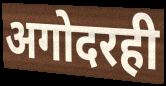
अगोदरही